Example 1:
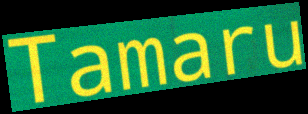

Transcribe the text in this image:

Tamaru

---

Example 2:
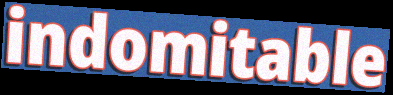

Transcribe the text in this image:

indomitable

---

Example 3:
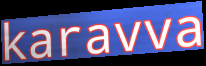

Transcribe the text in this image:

karavva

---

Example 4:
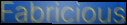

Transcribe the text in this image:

Fabricious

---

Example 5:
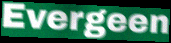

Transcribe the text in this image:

Evergeen